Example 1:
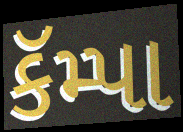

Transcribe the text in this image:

કૅમ્પા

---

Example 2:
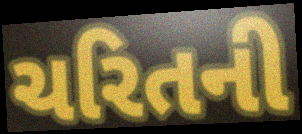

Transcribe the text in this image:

ચરિતની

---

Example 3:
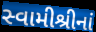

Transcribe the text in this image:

સ્વામીશ્રીનાં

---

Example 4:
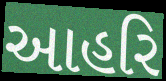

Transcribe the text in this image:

આહરિ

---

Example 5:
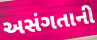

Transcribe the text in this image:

અસંગતાની